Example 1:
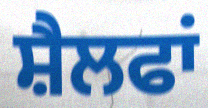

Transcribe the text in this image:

ਸ਼ੈਲਫਾਂ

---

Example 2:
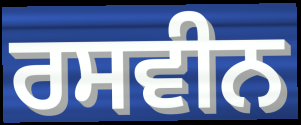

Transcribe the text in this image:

ਰਸਵੀਨ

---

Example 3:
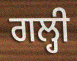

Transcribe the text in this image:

ਗਲ੍ਹੀ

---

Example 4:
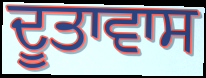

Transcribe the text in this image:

ਦੂਤਾਵਾਸ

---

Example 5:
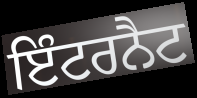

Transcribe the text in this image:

ਇੰਟਰਨੈਟ